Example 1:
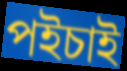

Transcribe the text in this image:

পইচাই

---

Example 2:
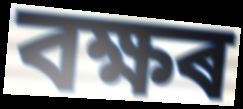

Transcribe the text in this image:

বক্ষৰ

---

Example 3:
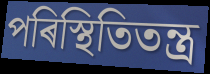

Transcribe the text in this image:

পৰিস্থিতিতন্ত্ৰ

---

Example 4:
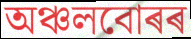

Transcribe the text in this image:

অঞ্চলবোৰৰ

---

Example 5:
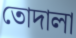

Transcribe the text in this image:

তোদালা